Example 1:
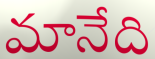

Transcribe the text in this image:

మానేది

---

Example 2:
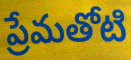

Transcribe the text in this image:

ప్రేమతోటి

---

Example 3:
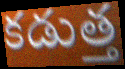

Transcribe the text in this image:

కడుత్త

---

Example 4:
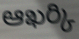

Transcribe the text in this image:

ఆఖర్కి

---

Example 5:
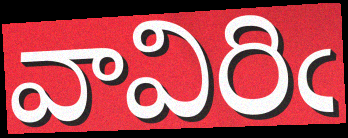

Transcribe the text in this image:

వావిరిఁ